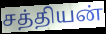
சத்தியன்